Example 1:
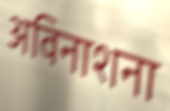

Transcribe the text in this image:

अविनाशना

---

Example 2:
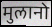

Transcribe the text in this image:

मुलानो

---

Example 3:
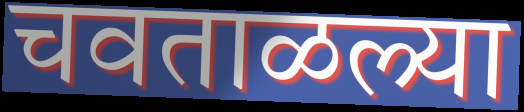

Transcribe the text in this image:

चवताळल्या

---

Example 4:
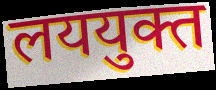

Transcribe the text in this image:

लययुक्त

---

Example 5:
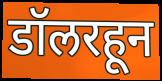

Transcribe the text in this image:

डॉलरहून